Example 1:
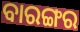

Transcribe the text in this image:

ବାରଙ୍ଗର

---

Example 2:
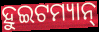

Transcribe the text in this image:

ହୁଇଟମ୍ୟାନ୍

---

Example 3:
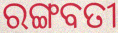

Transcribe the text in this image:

ରଙ୍ଗବତୀ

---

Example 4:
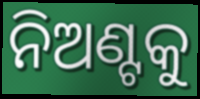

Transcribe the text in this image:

ନିଅଣ୍ଟକୁ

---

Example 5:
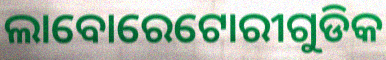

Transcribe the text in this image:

ଲାବୋରେଟୋରୀଗୁଡିକ